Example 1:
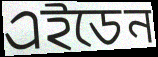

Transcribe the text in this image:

এইডেন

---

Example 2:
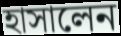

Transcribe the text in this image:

হাসালেন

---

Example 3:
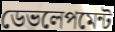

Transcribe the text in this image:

ডেভলেপমেন্ট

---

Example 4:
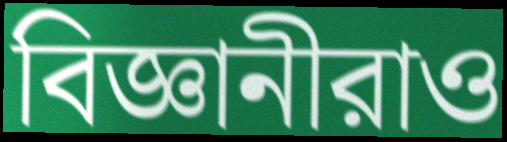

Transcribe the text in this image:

বিজ্ঞানীরাও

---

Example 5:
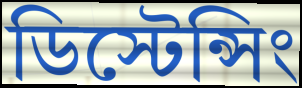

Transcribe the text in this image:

ডিস্টেন্সিং